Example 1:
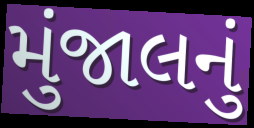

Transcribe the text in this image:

મુંજાલનું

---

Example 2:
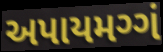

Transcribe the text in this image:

અપાયમગ્ગં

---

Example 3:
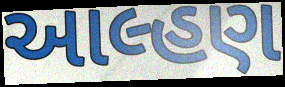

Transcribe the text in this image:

આલ્હણ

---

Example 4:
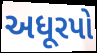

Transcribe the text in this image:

અધૂરપો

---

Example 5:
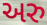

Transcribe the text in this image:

અરુ